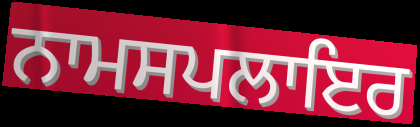
ਨਾਮਸਪਲਾਇਰ